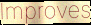
Improves